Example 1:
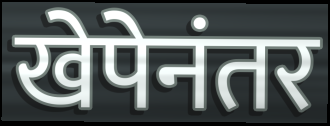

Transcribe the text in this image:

खेपेनंतर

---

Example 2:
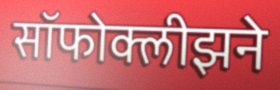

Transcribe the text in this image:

सॉफोक्लीझने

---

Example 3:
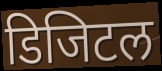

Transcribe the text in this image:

डिजिटल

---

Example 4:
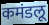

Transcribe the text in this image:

कमंडलू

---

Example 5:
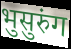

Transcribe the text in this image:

भुसुरुंग